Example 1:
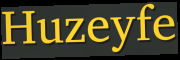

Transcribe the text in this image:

Huzeyfe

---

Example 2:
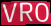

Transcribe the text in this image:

VRO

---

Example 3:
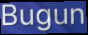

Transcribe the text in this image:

Bugun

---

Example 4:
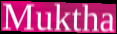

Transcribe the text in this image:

Muktha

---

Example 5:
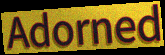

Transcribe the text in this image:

Adorned